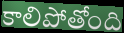
కాలిపోతోంది